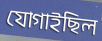
যোগাইছিল